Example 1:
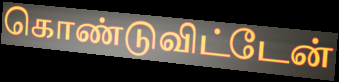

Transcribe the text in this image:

கொண்டுவிட்டேன்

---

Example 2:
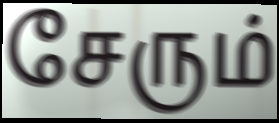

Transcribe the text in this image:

சேரும்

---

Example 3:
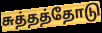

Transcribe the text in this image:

சுத்தத்தோடு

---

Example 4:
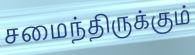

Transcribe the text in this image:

சமைந்திருக்கும்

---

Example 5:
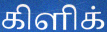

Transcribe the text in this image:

கிளிக்